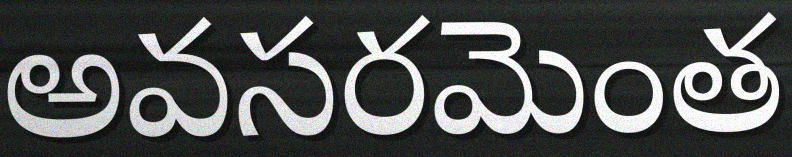
అవసరమెంత